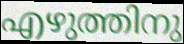
എഴുത്തിനു